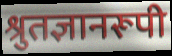
श्रुतज्ञानरूपी